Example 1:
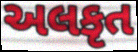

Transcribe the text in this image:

અલકૃત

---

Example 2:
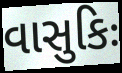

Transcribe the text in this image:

વાસુકિઃ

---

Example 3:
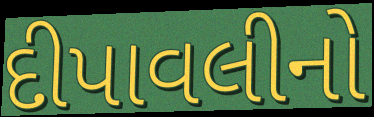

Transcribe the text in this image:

દીપાવલીનો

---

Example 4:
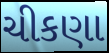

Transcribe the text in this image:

ચીકણા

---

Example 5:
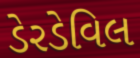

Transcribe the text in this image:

ડેરડેવિલ